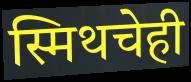
स्मिथचेही